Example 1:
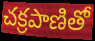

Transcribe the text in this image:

చక్రపాణితో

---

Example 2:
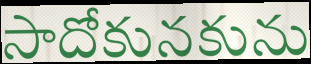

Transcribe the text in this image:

సాదోకునకును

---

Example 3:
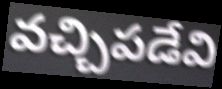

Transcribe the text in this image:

వచ్చిపడేవి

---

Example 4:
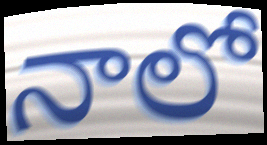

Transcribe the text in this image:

నాలో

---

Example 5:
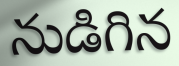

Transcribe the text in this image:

నుడిగిన